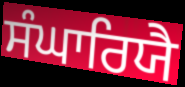
ਸੰਘਾਰਿਯੈ